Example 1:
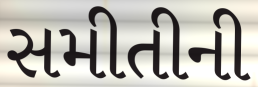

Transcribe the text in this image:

સમીતીની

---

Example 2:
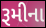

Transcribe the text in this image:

રૂમીના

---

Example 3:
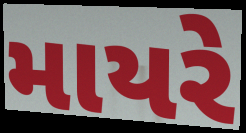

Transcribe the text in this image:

માયરે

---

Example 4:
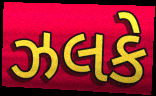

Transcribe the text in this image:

ઝલકે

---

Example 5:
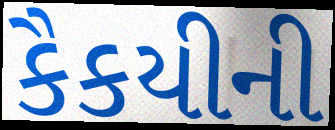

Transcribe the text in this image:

કૈકયીની